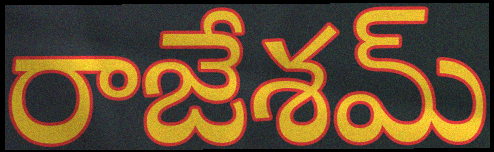
రాజేశమ్